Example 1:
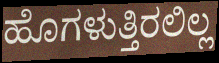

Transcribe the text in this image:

ಹೊಗಳುತ್ತಿರಲಿಲ್ಲ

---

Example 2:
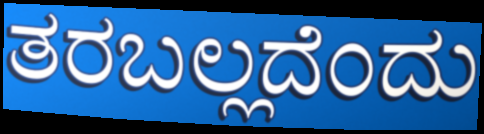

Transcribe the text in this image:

ತರಬಲ್ಲದೆಂದು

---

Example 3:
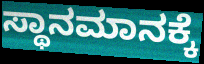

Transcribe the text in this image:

ಸ್ಥಾನಮಾನಕ್ಕೆ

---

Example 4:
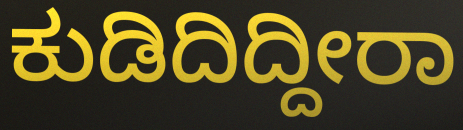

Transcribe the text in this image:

ಕುಡಿದಿದ್ದೀರಾ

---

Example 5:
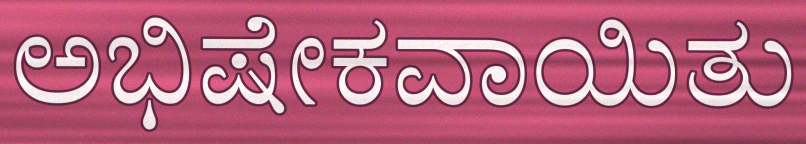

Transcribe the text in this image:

ಅಭಿಷೇಕವಾಯಿತು